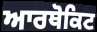
ਆਰਥੋਕਿਟ